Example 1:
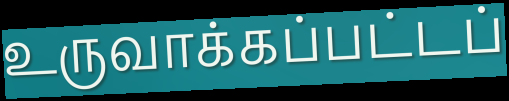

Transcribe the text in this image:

உருவாக்கப்பட்டப்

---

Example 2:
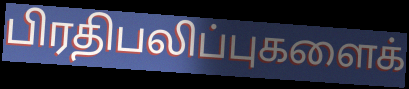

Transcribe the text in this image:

பிரதிபலிப்புகளைக்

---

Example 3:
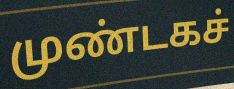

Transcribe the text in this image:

முண்டகச்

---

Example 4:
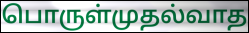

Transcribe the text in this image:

பொருள்முதல்வாத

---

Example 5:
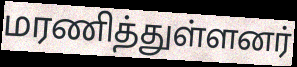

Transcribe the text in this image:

மரணித்துள்ளனர்